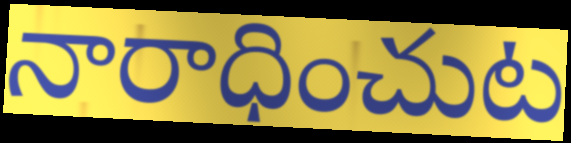
నారాధించుట